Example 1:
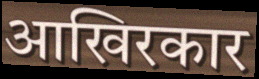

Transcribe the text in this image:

आखिरकार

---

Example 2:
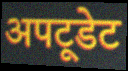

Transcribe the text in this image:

अपटूडेट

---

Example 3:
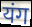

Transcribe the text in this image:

यंग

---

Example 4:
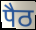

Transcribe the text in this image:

पैठ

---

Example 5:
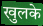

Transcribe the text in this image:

खुलके